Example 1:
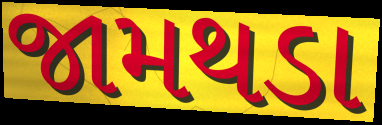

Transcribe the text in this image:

જામથડા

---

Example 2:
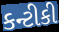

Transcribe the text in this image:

કન્ટીકી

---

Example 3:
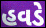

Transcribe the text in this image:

હવડે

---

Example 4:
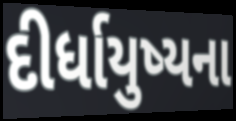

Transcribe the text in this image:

દીર્ધાયુષ્યના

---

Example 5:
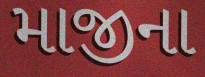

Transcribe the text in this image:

માજીના